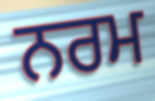
ਨਰਮ